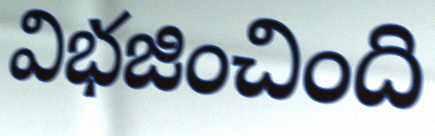
విభజించింది